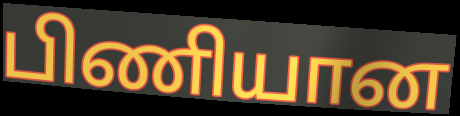
பிணியான